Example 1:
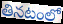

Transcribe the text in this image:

తినటంలో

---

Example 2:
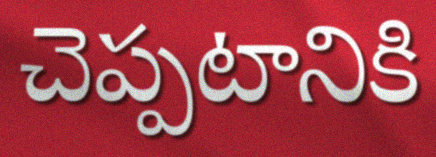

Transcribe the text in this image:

చెప్పటానికి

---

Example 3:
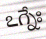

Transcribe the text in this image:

ఽగ్నేః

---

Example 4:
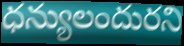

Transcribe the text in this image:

ధన్యులందురని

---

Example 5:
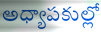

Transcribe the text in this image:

అధ్యాపకుల్లో